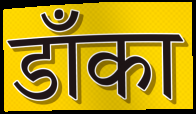
डाँका